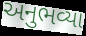
અનુભવ્યા